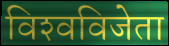
विश्वविजेता